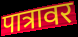
पात्रावर